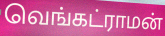
வெங்கட்ராமன்